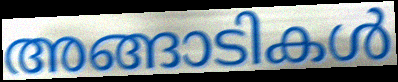
അങ്ങാടികൾ